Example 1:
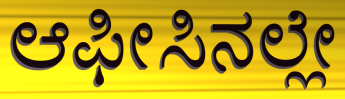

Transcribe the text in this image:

ಆಫೀಸಿನಲ್ಲೇ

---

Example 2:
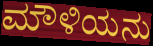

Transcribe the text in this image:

ಮೌಳಿಯನು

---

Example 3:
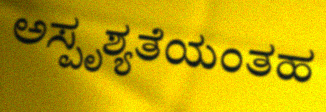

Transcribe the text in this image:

ಅಸ್ಪೃಶ್ಯತೆಯಂತಹ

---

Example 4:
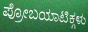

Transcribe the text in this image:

ಪ್ರೋಬಯಾಟಿಕ್ಗಳು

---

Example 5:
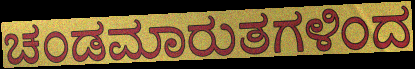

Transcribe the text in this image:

ಚಂಡಮಾರುತಗಳಿಂದ